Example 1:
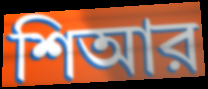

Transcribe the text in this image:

শিআর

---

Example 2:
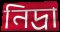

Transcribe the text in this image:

নিদ্রা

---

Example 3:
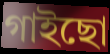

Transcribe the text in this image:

গাইছো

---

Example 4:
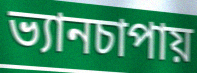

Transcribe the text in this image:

ভ্যানচাপায়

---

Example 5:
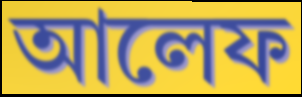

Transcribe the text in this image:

আলেফ